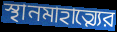
স্থানমাহাত্ম্যের